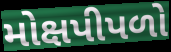
મોક્ષપીપળો